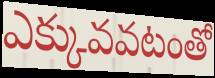
ఎక్కువవటంతో